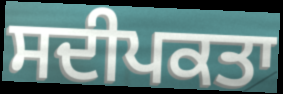
ਸਦੀਪਕਤਾ